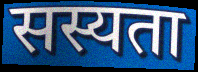
सस्यता